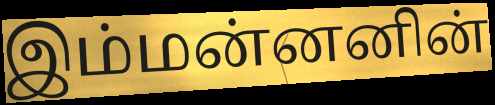
இம்மன்னனின்